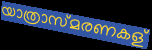
യാത്രാസ്മരണകള്